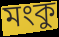
মংকু